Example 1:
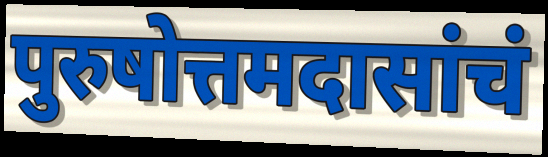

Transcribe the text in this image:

पुरुषोत्तमदासांचं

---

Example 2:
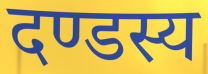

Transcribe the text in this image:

दण्डस्य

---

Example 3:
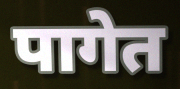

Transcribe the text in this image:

पागेत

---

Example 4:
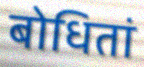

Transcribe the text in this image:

बोधितां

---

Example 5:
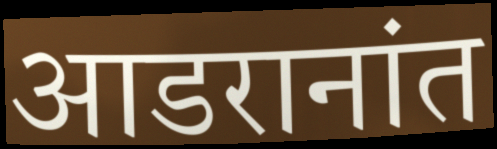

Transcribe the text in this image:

आडरानांत